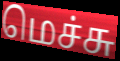
மெச்சு